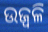
ଉଜ୍ୱଳି